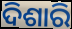
ଦିଶାରି